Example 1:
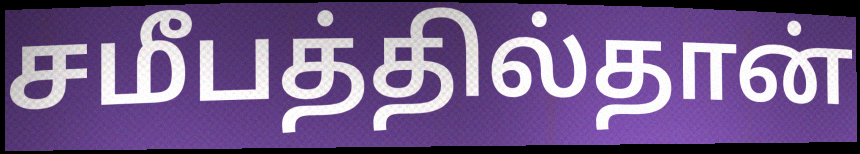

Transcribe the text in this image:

சமீபத்தில்தான்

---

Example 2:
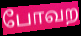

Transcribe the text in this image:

போவற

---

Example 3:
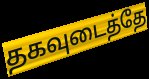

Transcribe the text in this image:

தகவுடைத்தே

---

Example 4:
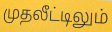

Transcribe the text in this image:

முதலீட்டிலும்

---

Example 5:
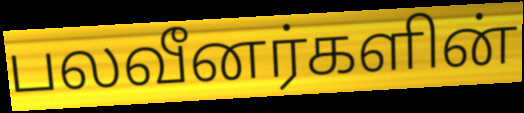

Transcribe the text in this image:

பலவீனர்களின்